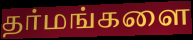
தர்மங்களை